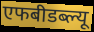
एफबीडब्ल्यू